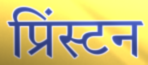
प्रिंस्टन